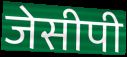
जेसीपी